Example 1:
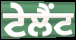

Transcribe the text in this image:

ਟੇਲੈਂਟ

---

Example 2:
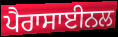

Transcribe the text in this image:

ਪੈਰਾਸਾਈਨਲ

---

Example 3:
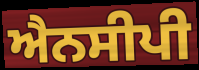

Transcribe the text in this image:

ਐਨਸੀਪੀ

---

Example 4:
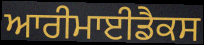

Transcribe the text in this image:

ਆਰੀਮਾਈਡੈਕਸ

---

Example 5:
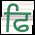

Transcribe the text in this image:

ਫਿ